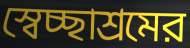
স্বেচ্ছাশ্রমের